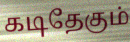
கடிதேகும்